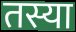
तस्या